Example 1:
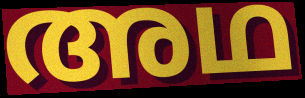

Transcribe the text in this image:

അഥ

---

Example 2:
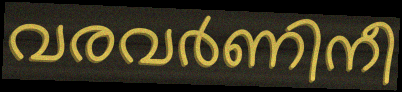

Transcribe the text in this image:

വരവർണിനീ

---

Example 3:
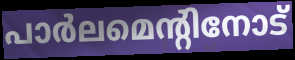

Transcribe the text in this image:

പാർലമെന്റിനോട്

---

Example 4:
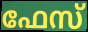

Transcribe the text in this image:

ഫേസ്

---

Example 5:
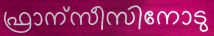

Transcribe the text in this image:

ഫ്രാന്സീസിനോടു